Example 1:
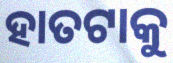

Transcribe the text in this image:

ହାତଟାକୁ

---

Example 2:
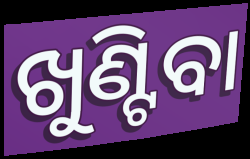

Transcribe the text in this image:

ଖୁଣ୍ଟିବା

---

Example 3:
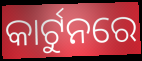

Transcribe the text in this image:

କାର୍ଟୁନରେ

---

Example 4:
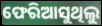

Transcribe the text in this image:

ଫେରିଆସୁଥିଲୁ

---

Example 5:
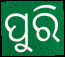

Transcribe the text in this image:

ପୁରି